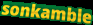
sonkamble